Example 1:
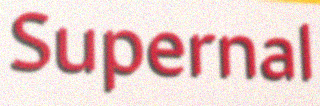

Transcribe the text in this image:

Supernal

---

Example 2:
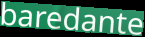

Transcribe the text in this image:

baredante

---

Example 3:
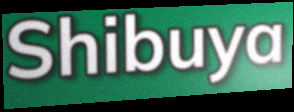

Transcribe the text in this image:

Shibuya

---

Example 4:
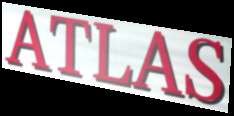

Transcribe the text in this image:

ATLAS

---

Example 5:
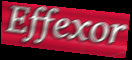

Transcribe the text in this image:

Effexor